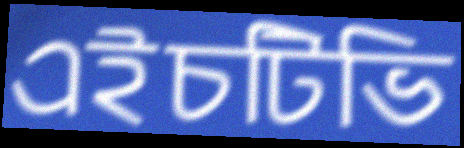
এইচটিভি